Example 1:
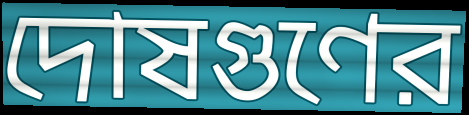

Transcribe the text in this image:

দোষগুণের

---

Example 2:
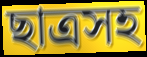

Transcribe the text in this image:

ছাত্রসহ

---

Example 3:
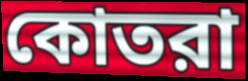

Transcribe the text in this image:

কোতরা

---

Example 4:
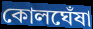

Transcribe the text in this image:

কোলঘেঁষা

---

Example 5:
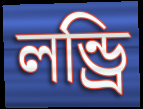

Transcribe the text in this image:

লন্ড্রি